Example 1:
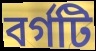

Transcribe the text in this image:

বর্গটি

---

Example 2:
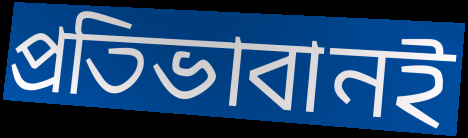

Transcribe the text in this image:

প্রতিভাবানই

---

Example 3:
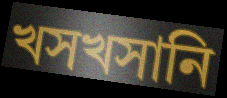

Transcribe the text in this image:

খসখসানি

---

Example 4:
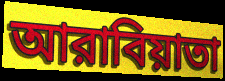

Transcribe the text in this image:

আরাবিয়াতা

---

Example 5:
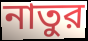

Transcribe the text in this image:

নাতুর